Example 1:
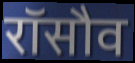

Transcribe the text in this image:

रॉसौव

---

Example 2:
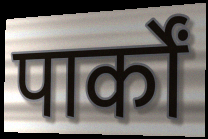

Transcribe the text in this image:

पार्कों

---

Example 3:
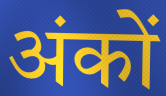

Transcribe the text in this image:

अंकों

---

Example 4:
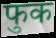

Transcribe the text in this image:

फुक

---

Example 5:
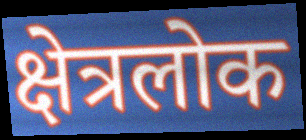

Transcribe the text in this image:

क्षेत्रलोक